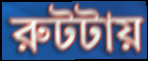
রুটটায়